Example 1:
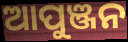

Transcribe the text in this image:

ଆପୁଞ୍ଜନ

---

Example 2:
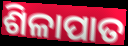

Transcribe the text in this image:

ଶିଳାପାତ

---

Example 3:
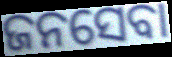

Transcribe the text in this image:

ଜନସେବା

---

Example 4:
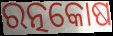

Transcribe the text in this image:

ରତ୍ନକୋଷ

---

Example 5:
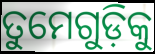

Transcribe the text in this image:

ତୁମେଗୁଡ଼ିକୁ